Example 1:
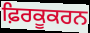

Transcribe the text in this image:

ਫ਼ਿਰਕੂਕਰਨ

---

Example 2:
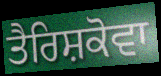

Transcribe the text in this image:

ਤੈਰਿਸ਼ਕੋਵਾ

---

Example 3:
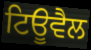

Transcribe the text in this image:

ਟਿਊਵੈਲ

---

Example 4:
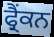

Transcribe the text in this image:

ਫ੍ਰੈਂਕਨ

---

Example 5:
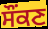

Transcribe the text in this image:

ਸੌਂਕਣ